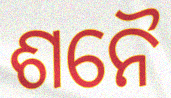
ଶନୈ